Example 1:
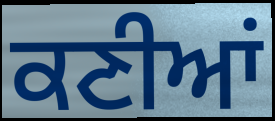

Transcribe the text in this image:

ਕਣੀਆਂ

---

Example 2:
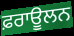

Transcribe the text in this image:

ਫ਼ਰਾਊਲਨ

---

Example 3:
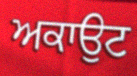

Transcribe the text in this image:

ਅਕਾਉਟ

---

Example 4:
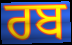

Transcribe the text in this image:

ਰਬ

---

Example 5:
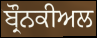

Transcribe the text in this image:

ਬ੍ਰੌਨਕੀਅਲ